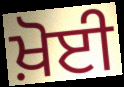
ਖ਼ੋਈ